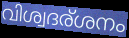
വിശ്വദര്ശനം